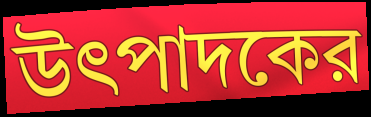
উৎপাদকের